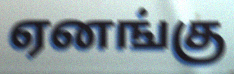
ஏனங்கு